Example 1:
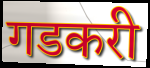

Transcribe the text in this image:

गडकरी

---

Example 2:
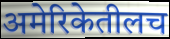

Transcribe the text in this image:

अमेरिकेतीलच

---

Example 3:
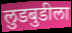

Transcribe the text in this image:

लुडबुडीला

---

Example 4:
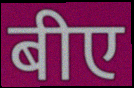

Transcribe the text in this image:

बीए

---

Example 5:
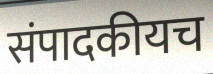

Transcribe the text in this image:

संपादकीयच